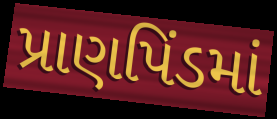
પ્રાણપિંડમાં